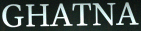
GHATNA